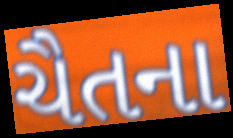
ચૈતના